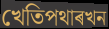
খেতিপথাৰখন